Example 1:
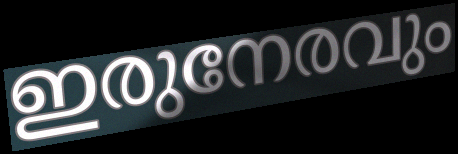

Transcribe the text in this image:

ഇരുനേരവും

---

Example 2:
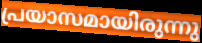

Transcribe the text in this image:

പ്രയാസമായിരുന്നു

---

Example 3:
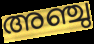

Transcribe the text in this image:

അഞ്ചു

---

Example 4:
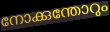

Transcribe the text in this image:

നോക്കുന്തോറും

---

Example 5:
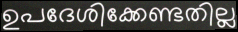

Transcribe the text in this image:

ഉപദേശിക്കേണ്ടതില്ല